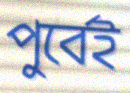
পুৰ্বেই